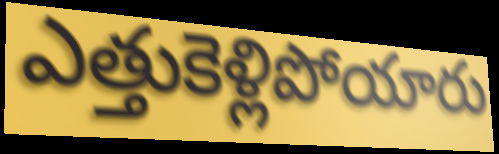
ఎత్తుకెళ్లిపోయారు